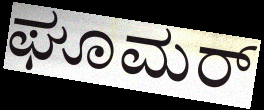
ಘೂಮರ್